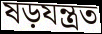
ষড়যন্ত্ৰত